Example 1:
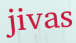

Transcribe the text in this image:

jivas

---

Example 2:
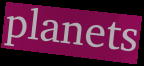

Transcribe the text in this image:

planets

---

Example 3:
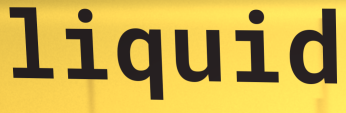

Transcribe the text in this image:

liquid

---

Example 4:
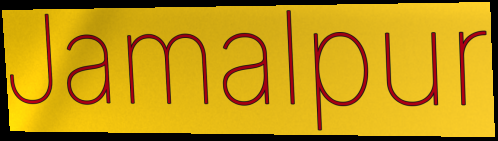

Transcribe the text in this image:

Jamalpur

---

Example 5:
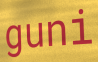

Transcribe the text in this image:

guni